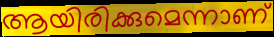
ആയിരിക്കുമെന്നാണ്